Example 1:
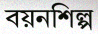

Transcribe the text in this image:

বয়নশিল্প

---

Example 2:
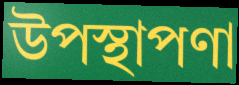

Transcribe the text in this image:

উপস্থাপণা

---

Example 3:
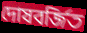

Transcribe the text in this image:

দোষবর্জিত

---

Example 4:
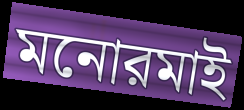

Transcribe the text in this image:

মনোরমাই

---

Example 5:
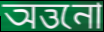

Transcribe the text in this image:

অত্তনো